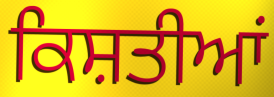
ਕਿਸ਼ਤੀਆਂ